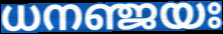
ധനഞ്ജയഃ